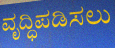
ವೃದ್ಧಿಪಡಿಸಲು